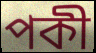
পকী